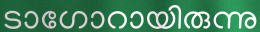
ടാഗോറായിരുന്നു